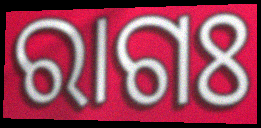
ରାଗଃ